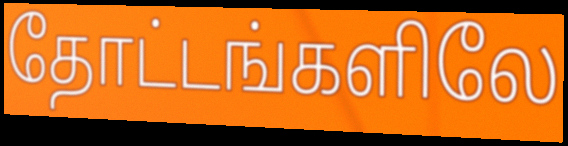
தோட்டங்களிலே